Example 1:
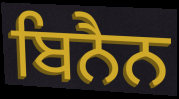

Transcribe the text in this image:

ਬਿਨੈਨ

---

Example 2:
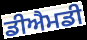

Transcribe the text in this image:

ਡੀਐਮਡੀ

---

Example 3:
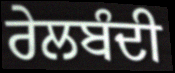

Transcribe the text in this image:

ਰੇਲਬੰਦੀ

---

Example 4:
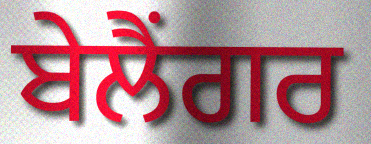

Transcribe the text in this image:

ਬੇਲੈਂਗਰ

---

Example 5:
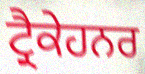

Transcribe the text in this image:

ਟ੍ਰੈਕੇਹਨਰ